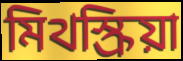
মিথস্ক্রিয়া